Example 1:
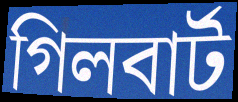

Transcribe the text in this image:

গিলবাৰ্ট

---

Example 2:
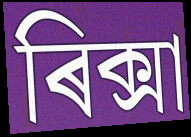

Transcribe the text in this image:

ৰিক্সা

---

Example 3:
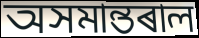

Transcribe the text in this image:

অসমান্তৰাল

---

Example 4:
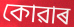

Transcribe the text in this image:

কোৱাৰ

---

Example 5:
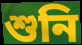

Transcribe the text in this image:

শুনি